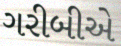
ગરીબીએ